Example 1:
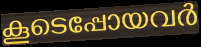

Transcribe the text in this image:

കൂടെപ്പോയവർ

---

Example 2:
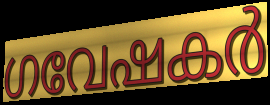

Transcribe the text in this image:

ഗവേഷകർ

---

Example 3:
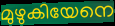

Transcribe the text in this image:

മുഴുകിയേനെ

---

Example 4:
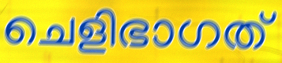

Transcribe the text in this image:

ചെളിഭാഗത്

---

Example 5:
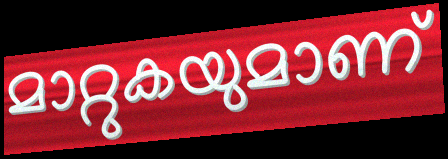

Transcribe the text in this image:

മാറ്റുകയുമാണ്